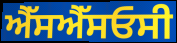
ਐੱਸਐੱਸਓਸੀ